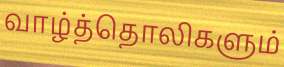
வாழ்த்தொலிகளும்